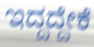
ಇದ್ದದ್ದೇಕೆ